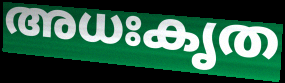
അധഃകൃത